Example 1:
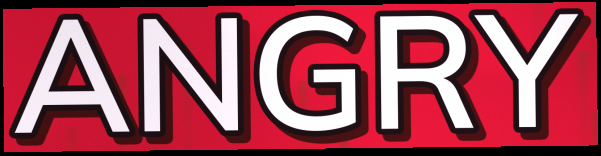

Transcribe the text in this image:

ANGRY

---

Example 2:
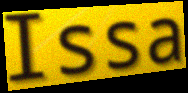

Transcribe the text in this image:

Issa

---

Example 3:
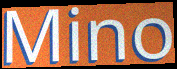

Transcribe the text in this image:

Mino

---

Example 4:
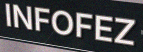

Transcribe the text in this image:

INFOFEZ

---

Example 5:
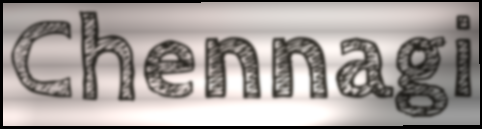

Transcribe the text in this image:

Chennagi